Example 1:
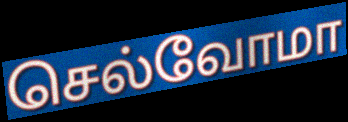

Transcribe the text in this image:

செல்வோமா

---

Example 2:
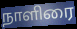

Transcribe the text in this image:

நாளிரை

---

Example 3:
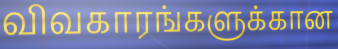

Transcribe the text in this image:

விவகாரங்களுக்கான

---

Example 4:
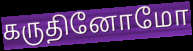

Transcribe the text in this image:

கருதினோமோ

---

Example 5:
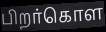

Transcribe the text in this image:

பிறர்கொள